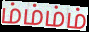
ம்ம்ம்ம்